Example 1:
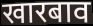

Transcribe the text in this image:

खारबाव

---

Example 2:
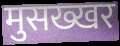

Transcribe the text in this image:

मुसख्खर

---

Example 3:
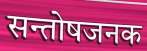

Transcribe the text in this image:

सन्तोषजनक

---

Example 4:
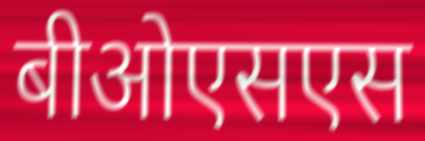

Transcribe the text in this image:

बीओएसएस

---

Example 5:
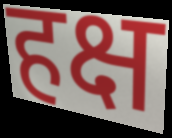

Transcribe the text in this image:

हक्ष